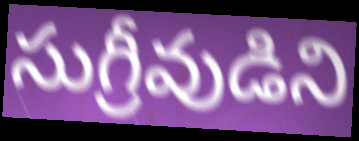
సుగ్రీవుడిని